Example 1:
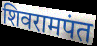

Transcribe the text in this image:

शिवरामपंत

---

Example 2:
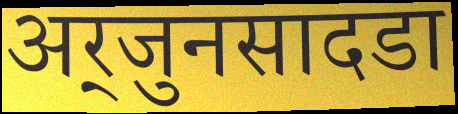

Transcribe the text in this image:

अर्जुनसादडा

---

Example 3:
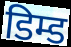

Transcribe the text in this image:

डिम्ड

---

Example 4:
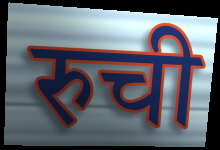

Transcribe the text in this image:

रुची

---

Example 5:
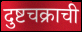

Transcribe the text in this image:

दुष्टचक्राची